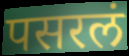
पसरलं